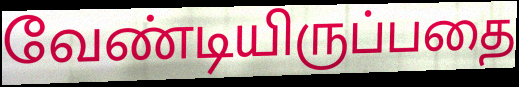
வேண்டியிருப்பதை